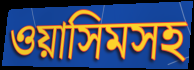
ওয়াসিমসহ